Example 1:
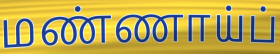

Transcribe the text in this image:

மண்ணாய்ப்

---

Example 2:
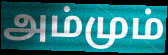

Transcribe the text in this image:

அம்மும்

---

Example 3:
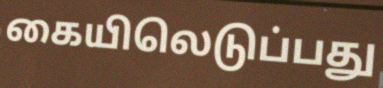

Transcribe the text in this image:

கையிலெடுப்பது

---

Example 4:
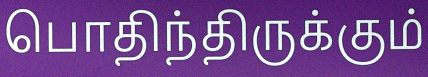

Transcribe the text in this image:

பொதிந்திருக்கும்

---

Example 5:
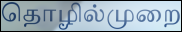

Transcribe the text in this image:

தொழில்முறை